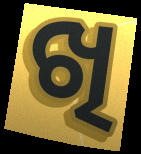
ଖି